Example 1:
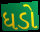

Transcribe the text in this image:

ધડો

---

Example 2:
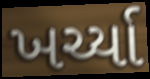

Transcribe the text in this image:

ખર્ચ્યા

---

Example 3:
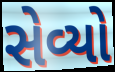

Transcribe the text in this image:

સેવ્યો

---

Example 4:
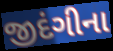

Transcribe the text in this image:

જીદંગીના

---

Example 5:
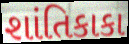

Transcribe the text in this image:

શાંતિકાકા